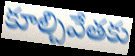
కూల్చివేతకు